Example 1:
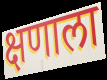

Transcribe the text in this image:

क्षणाला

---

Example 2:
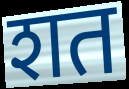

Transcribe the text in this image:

शत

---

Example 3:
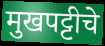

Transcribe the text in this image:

मुखपट्टीचे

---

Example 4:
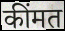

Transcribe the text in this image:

कींमत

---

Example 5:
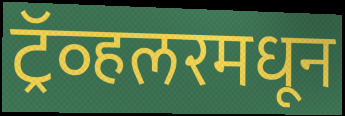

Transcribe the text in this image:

ट्रॅव्हलरमधून